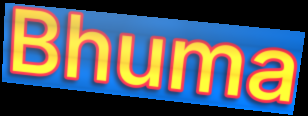
Bhuma